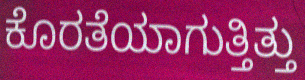
ಕೊರತೆಯಾಗುತ್ತಿತ್ತು